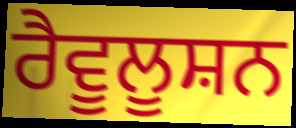
ਰੈਵੂਲੂਸ਼ਨ